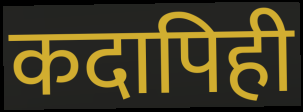
कदापिही